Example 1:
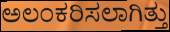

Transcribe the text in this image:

ಅಲಂಕರಿಸಲಾಗಿತ್ತು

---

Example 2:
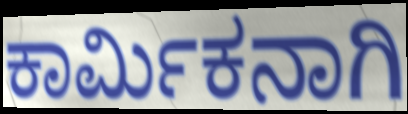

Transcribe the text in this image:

ಕಾರ್ಮಿಕನಾಗಿ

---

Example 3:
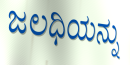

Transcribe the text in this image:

ಜಲಧಿಯನ್ನು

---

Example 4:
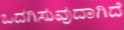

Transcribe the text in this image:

ಒದಗಿಸುವುದಾಗಿದೆ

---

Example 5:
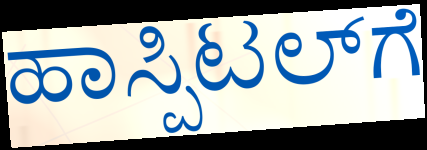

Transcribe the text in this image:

ಹಾಸ್ಪಿಟಲ್‌ಗೆ